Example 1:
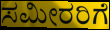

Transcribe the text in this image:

ಸಮೀರರಿಗೆ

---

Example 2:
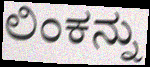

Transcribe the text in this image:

ಲಿಂಕನ್ನು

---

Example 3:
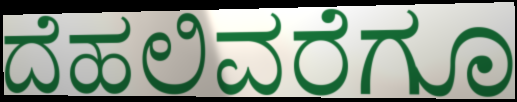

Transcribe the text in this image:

ದೆಹಲಿವರೆಗೂ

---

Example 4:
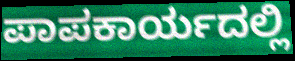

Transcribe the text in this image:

ಪಾಪಕಾರ್ಯದಲ್ಲಿ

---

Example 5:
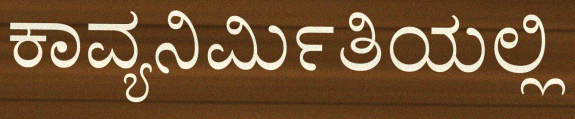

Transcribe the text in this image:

ಕಾವ್ಯನಿರ್ಮಿತಿಯಲ್ಲಿ